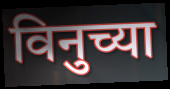
विनुच्या